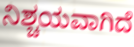
ನಿಶ್ಚಯವಾಗಿದೆ